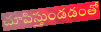
చూపిస్తుండడంతో